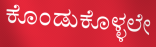
ಕೊಂಡುಕೊಳ್ಳಲೇ